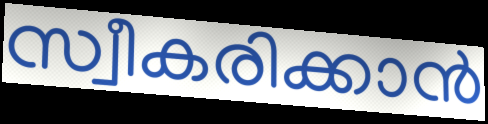
സ്വീകരിക്കാൻ